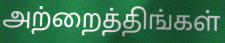
அற்றைத்திங்கள்